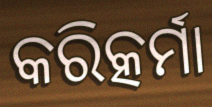
କରିତ୍କର୍ମା